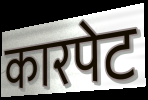
कारपेट